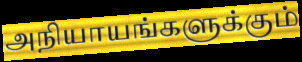
அநியாயங்களுக்கும்